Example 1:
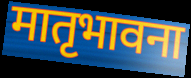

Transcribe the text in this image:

मातृभावना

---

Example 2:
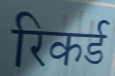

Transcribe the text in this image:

रिकर्ड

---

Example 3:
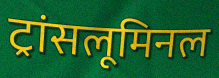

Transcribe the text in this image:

ट्रांसलूमिनल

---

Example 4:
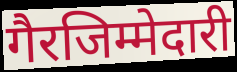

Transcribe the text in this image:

गैरजिम्मेदारी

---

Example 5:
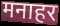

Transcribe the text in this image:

मनाहर